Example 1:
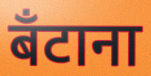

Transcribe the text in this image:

बँटाना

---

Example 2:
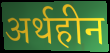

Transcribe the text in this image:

अर्थहीन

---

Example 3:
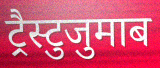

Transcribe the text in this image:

ट्रैस्टुजुमाब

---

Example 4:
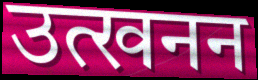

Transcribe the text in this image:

उत्खनन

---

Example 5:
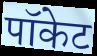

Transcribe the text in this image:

पॉकेट